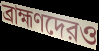
ব্রাহ্মণদেরও